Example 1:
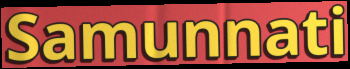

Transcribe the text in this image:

Samunnati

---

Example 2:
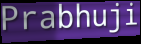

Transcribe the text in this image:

Prabhuji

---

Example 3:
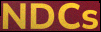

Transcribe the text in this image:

NDCs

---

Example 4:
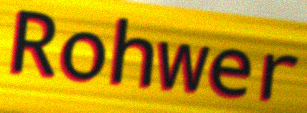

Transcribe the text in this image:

Rohwer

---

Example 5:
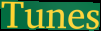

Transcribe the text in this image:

Tunes